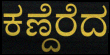
ಕಣ್ದೆರೆದ